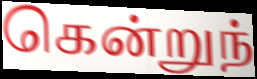
கென்றுந்